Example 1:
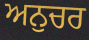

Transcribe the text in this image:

ਅਨੁਚਰ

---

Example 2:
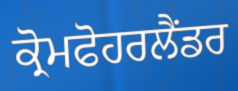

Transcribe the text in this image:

ਕ੍ਰੋਮਫੋਹਰਲੈਂਡਰ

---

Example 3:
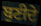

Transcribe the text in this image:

ਬੁਣੀਦੇ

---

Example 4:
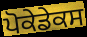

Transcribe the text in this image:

ਪੋਕੇਡੇਕਸ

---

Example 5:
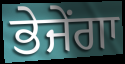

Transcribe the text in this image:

ਭੇਜੇਂਗਾ